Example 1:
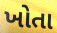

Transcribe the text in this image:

ખોતા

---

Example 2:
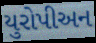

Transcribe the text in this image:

યુરોપીઅન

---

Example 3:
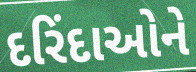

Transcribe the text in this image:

દરિંદાઓને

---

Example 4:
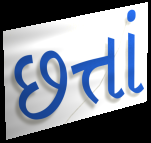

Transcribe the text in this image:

છત્તાં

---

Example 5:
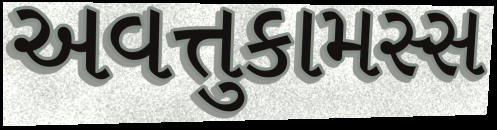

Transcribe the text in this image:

અવત્તુકામસ્સ